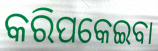
କରିପକେଇବା